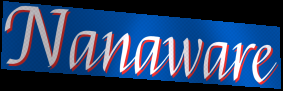
Nanaware